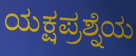
ಯಕ್ಷಪ್ರಶ್ನೆಯ